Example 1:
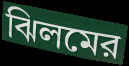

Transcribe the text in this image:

ঝিলমের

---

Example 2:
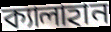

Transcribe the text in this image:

ক্যালাহান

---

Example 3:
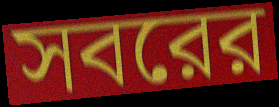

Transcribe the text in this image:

সবরের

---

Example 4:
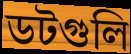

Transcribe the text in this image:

ডটগুলি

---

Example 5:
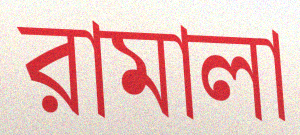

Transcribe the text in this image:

রামালা